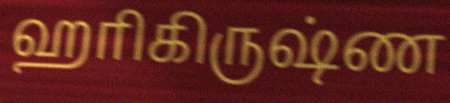
ஹரிகிருஷ்ண